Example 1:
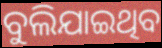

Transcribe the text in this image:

ବୁଲିଯାଇଥିବ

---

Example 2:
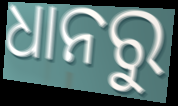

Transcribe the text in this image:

ଧାନରୁ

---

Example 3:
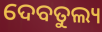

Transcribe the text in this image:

ଦେବତୁଲ୍ୟ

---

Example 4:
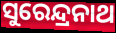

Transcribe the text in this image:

ସୁରେନ୍ଦ୍ରନାଥ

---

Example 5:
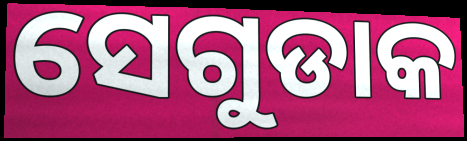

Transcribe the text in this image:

ସେଗୁଡାକ